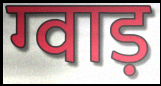
ग्वाड़